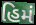
હિમં